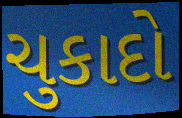
ચુકાદો